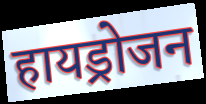
हायड्रोजन